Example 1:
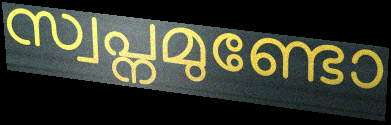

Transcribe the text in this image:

സ്വപ്നമുണ്ടോ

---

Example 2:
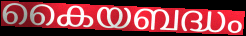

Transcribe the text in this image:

കൈയബദ്ധം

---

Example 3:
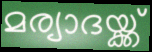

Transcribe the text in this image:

മര്യാദയ്ക്ക്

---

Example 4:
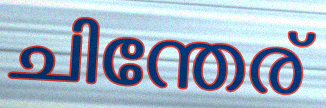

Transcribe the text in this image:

ചിന്തേര്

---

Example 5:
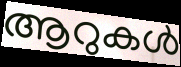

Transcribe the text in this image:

ആറുകൾ